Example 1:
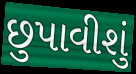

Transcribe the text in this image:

છુપાવીશું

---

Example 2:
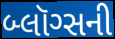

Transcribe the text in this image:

બ્લૉગ્સની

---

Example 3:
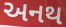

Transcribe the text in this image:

અનથ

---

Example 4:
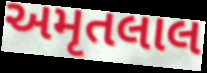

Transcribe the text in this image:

અમૃતલાલ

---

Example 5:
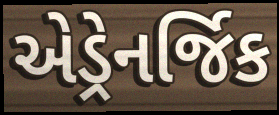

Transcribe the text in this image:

એડ્રેનર્જિક